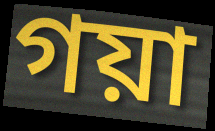
গয়া